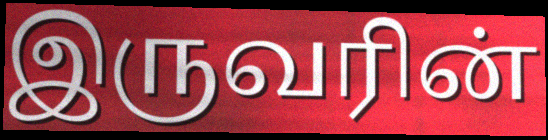
இருவரின்